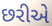
છરીએ